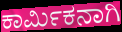
ಕಾರ್ಮಿಕನಾಗಿ